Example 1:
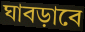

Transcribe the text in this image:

ঘাবড়াবে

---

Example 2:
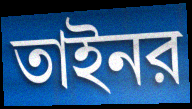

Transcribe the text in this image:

তাইনর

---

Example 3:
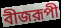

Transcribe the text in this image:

বীজরূপী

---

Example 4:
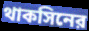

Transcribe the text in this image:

থাকসিনের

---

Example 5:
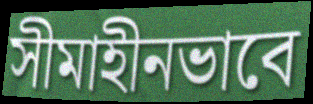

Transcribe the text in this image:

সীমাহীনভাবে